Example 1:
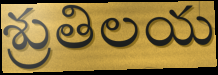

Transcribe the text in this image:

శ్రుతిలయ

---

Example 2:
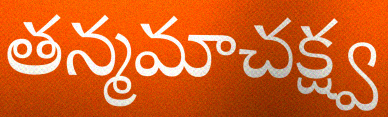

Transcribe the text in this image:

తన్మమాచక్ష్వ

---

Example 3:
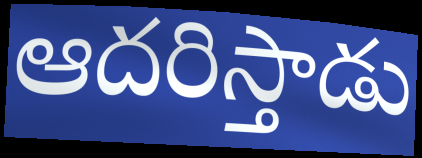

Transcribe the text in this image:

ఆదరిస్తాడు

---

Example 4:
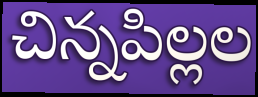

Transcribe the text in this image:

చిన్నపిల్లల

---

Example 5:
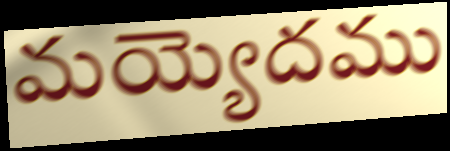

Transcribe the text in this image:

మయ్యెదము